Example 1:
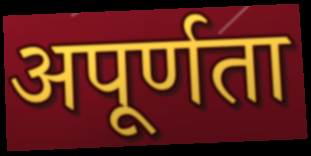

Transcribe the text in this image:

अपूर्णता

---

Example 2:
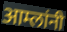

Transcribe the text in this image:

आम्लांनी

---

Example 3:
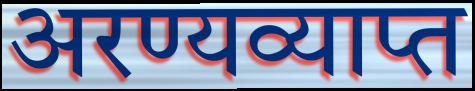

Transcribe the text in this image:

अरण्यव्याप्त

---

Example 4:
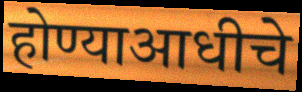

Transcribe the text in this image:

होण्याआधीचे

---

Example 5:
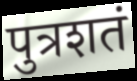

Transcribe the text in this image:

पुत्रशतं